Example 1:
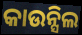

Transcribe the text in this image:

କାଉନ୍ସିଲ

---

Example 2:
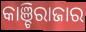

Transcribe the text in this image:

କାଞ୍ଚିରାଜାର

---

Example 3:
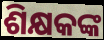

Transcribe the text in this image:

ଶିକ୍ଷକଙ୍କ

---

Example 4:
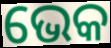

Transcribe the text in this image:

ଭେକ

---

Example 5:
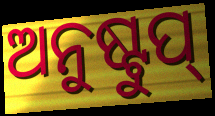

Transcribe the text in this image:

ଅନୁଷ୍ଟୁପ୍